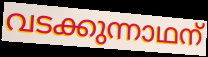
വടക്കുന്നാഥന്